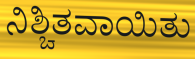
ನಿಶ್ಚಿತವಾಯಿತು